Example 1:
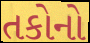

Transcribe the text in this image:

તકોનો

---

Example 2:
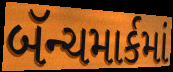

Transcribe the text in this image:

બૅન્ચમાર્કમાં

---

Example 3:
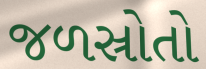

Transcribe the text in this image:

જળસ્રોતો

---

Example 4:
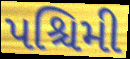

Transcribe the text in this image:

પશ્ચિમી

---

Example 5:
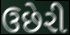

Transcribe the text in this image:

ઉછેરી